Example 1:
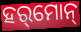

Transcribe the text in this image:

ହର୍‌ମୋନ୍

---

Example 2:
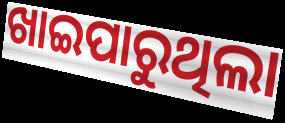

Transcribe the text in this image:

ଖାଇପାରୁଥିଲା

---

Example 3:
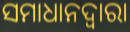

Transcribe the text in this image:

ସମାଧାନଦ୍ୱାରା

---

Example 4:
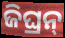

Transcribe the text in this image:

ଜିଘ୍ରନ୍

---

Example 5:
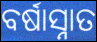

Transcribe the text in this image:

ବର୍ଷାସ୍ନାତ